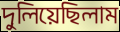
দুলিয়েছিলাম